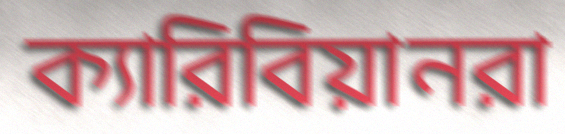
ক্যারিবিয়ানরা